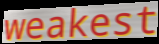
weakest